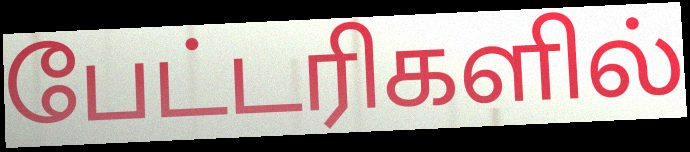
பேட்டரிகளில்